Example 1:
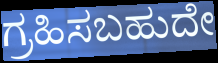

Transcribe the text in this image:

ಗ್ರಹಿಸಬಹುದೇ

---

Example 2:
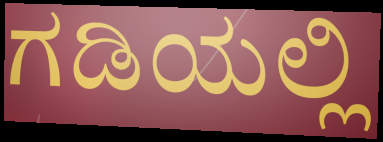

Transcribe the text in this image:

ಗಡಿಯಲ್ಲಿ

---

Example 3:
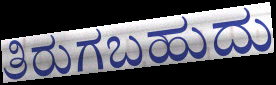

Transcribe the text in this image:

ತಿರುಗಬಹುದು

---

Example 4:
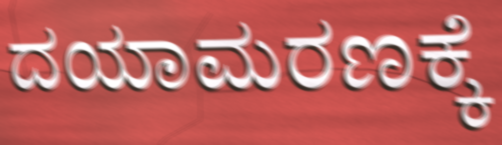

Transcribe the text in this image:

ದಯಾಮರಣಕ್ಕೆ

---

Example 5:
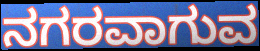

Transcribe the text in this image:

ನಗರವಾಗುವ